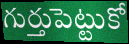
గుర్తుపెట్టుకో